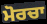
ਮੋਰਚਾ